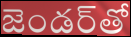
జెండర్‌తో